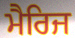
ਮੈਰਿਜ